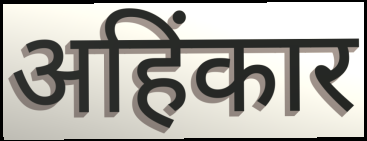
अहिंकार